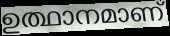
ഉത്ഥാനമാണ്